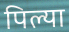
पिल्या